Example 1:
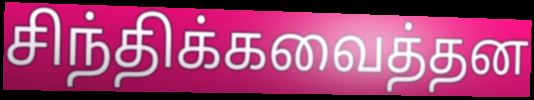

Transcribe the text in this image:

சிந்திக்கவைத்தன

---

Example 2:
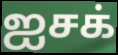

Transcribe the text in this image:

ஐசக்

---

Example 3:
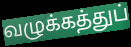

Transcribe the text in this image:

வழுக்கத்துப்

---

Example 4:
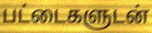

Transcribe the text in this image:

பட்டைகளுடன்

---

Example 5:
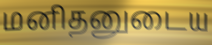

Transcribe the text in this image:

மனிதனுடைய